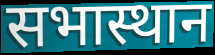
सभास्थान